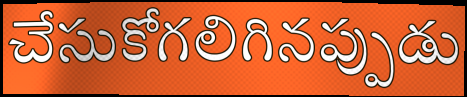
చేసుకోగలిగినప్పుడు